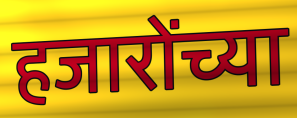
हजारोंच्या